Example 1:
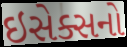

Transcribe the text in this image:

ઇસેક્સનો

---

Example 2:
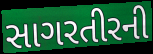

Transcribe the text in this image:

સાગરતીરની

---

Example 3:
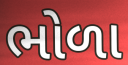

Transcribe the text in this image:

ભોળા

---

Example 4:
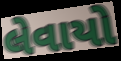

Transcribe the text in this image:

લેવાયો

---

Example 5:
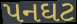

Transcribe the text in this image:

પનઘટ